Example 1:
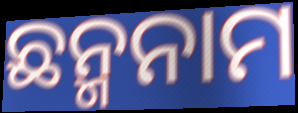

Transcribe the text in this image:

ଛନ୍ମନାମ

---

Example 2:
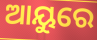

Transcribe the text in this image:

ଆୟୁରେ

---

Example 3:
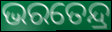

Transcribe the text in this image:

ଭରତେନ୍ଦ୍ର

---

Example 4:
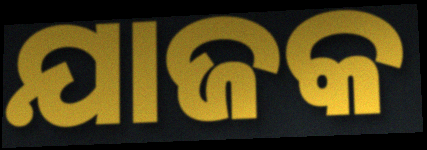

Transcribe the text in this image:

ଯାଜକ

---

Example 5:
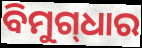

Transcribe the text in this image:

ବିମୁଗ୍‌ଧାର